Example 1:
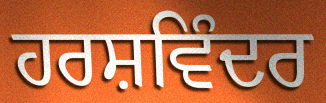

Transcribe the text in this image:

ਹਰਸ਼ਵਿੰਦਰ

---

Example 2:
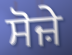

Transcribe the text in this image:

ਸੋਜ਼ੇ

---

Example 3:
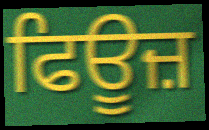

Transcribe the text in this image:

ਫਿਊਜ਼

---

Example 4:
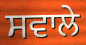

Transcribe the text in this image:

ਸਵਾਲੇ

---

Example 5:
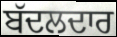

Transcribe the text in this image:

ਬੱਦਲਦਾਰ